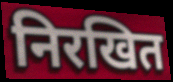
निरखित